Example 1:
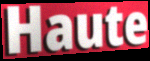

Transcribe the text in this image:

Haute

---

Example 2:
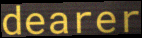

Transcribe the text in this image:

dearer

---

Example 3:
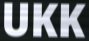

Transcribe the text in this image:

UKK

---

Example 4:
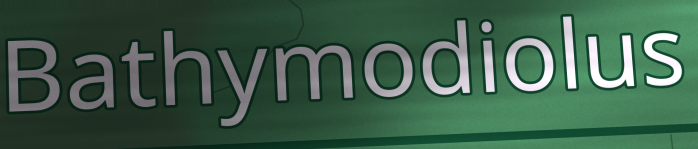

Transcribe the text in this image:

Bathymodiolus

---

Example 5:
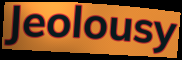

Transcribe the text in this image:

Jeolousy